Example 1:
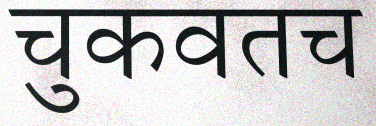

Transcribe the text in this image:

चुकवतच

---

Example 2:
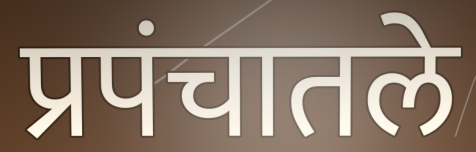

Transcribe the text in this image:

प्रपंचातले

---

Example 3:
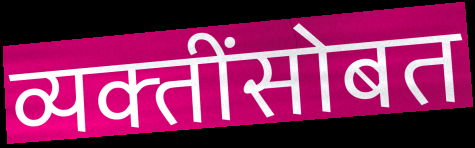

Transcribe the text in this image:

व्यक्‍तींसोबत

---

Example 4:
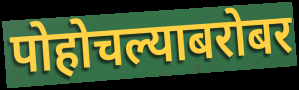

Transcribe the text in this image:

पोहोचल्याबरोबर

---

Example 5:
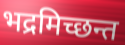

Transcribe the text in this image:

भद्रमिच्छन्त